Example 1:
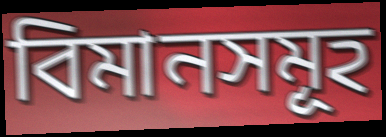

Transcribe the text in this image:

বিমানসমূহ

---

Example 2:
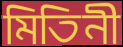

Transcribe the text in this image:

মিতিনী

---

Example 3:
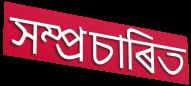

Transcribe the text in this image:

সম্প্ৰচাৰিত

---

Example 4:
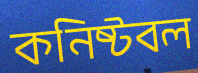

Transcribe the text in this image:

কনিষ্টবল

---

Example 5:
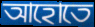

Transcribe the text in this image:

আহোতে